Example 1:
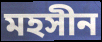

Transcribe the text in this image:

মহসীন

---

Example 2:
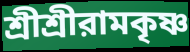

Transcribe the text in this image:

শ্রীশ্রীরামকৃষ্ণ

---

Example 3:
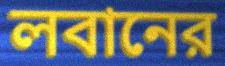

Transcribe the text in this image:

লবানের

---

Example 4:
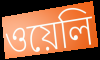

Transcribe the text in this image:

ওয়েলি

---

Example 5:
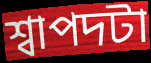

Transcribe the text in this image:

শ্বাপদটা